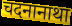
चदनानाथा